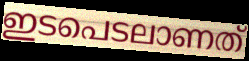
ഇടപെടലാണത്